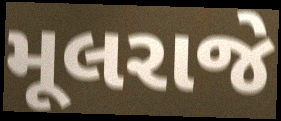
મૂલરાજે